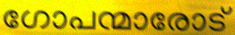
ഗോപന്മാരോട്